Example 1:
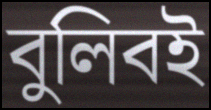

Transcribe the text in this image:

বুলিবই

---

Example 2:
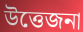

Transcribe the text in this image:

উত্তেজনা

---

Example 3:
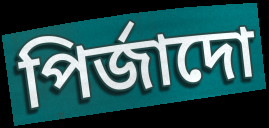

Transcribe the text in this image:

পিৰ্জাদো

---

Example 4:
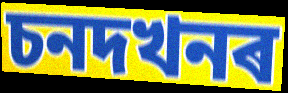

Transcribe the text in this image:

চনদখনৰ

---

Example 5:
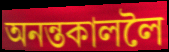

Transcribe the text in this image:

অনন্তকাললৈ